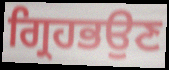
ਗ੍ਰਿਹਭਉਣ